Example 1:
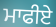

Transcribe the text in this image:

ਮਾਫੀਏ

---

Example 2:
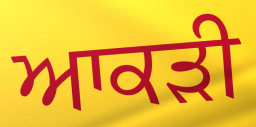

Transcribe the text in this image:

ਆਕੜੀ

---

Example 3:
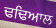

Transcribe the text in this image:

ਢਢਿਆਲ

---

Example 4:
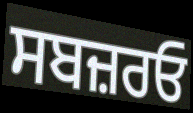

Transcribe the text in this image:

ਸਬਜ਼ਰਓ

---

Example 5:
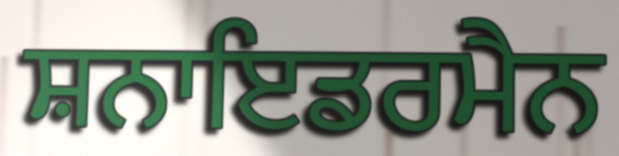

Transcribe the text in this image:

ਸ਼ਨਾਇਡਰਮੈਨ